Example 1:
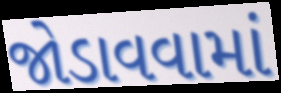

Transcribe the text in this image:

જોડાવવામાં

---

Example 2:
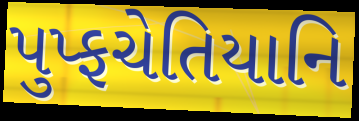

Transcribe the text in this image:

પુપ્ફચેતિયાનિ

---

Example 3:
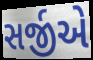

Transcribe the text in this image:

સર્જીએ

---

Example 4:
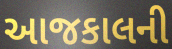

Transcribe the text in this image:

આજકાલની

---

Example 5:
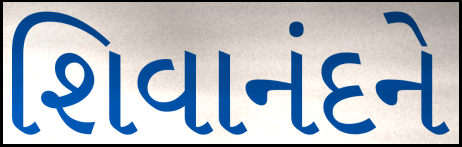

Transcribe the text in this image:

શિવાનંદને